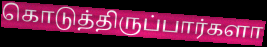
கொடுத்திருப்பார்களா